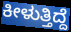
ಕೀಳುತ್ತಿದ್ದೆ